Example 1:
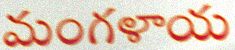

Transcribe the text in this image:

మంగళాయ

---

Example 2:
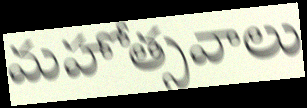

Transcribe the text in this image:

మహోత్సవాలు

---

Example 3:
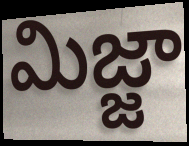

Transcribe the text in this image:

మిజ్జా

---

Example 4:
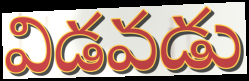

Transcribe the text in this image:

విడవడు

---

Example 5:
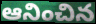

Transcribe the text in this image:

ఆనించిన